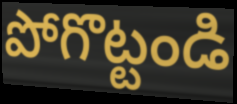
పోగొట్టండి